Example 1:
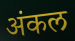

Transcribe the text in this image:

अंकल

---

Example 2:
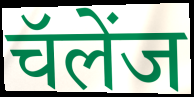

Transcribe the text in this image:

चॅलेंज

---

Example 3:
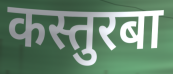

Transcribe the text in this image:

कस्तुरबा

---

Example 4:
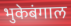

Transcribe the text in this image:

भुकेबंगाल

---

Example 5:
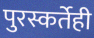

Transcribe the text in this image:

पुरस्कर्तेही